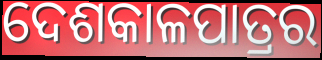
ଦେଶକାଳପାତ୍ରର